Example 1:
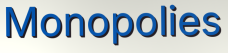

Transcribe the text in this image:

Monopolies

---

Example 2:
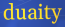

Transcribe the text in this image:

duaity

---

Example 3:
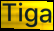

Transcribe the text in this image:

Tiga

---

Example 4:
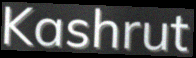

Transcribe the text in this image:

Kashrut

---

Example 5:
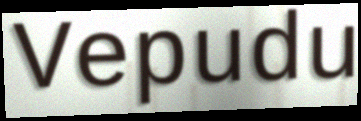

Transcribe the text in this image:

Vepudu